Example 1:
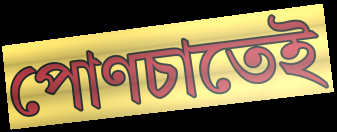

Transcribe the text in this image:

পোণচাতেই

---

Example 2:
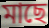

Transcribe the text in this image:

মাছে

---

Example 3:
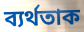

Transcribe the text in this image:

ব্যৰ্থতাক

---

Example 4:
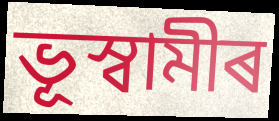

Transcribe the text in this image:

ভূস্বামীৰ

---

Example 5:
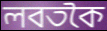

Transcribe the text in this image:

লবতকৈ